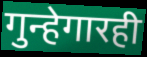
गुन्हेगारही